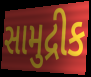
સામુદ્રીક